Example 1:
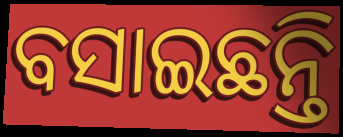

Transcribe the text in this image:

ବସାଇଛନ୍ତି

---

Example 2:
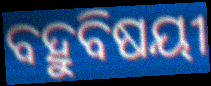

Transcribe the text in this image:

ବହୁବିଷୟୀ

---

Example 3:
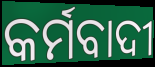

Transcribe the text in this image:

କର୍ମବାଦୀ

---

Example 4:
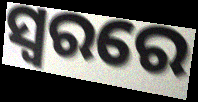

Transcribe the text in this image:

ସ୍ବରରେ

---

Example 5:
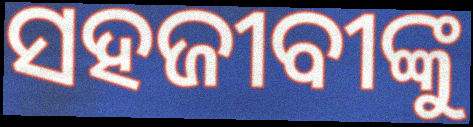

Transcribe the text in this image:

ସହଜୀବୀଙ୍କୁ